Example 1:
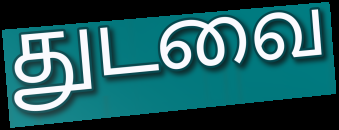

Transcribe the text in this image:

துடவை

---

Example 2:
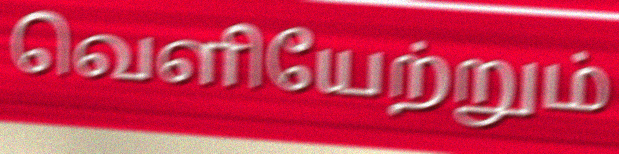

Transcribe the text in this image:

வெளியேற்றும்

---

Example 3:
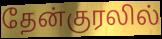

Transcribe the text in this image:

தேன்குரலில்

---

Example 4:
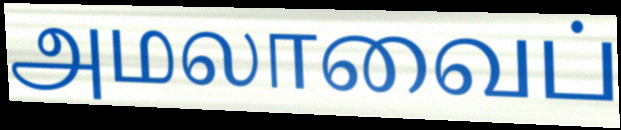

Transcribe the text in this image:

அமலாவைப்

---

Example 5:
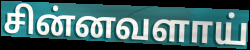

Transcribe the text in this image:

சின்னவளாய்